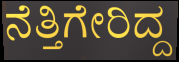
ನೆತ್ತಿಗೇರಿದ್ದ